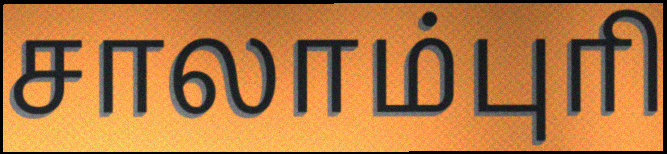
சாலாம்புரி